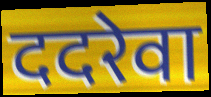
ददरेवा